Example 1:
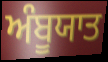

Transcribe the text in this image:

ਅੰਬੂਯਾਤ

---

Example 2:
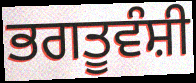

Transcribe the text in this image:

ਭਗਤੂਵੰਸ਼ੀ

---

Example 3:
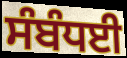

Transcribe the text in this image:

ਸੰਬੰਧਈ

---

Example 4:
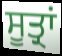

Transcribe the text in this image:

ਸੂਤ੍ਰਾਂ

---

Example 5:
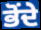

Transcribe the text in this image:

ਭੋਂਦੇ